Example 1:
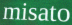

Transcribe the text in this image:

misato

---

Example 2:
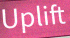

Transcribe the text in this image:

Uplift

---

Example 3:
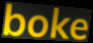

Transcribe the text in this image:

boke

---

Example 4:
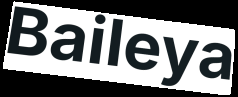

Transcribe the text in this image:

Baileya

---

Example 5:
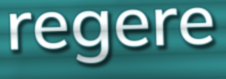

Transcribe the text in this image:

regere